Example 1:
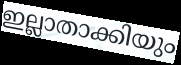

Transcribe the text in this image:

ഇല്ലാതാക്കിയും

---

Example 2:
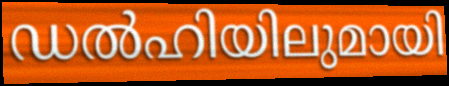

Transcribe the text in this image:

ഡൽഹിയിലുമായി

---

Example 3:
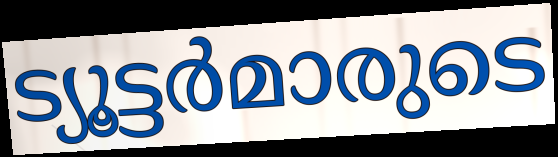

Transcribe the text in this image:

ട്യൂട്ടർമാരുടെ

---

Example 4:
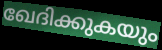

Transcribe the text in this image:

ഖേദിക്കുകയും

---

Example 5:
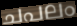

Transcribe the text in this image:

ചപലം